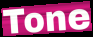
Tone